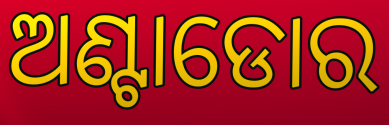
ଅଣ୍ଟାଡୋର